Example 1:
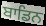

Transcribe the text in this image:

ਬਾਡਿਨ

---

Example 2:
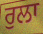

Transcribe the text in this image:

ਰੁਲਾ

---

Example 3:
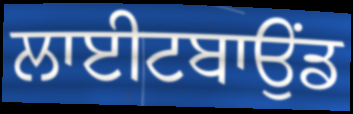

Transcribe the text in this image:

ਲਾਈਟਬਾਉਂਡ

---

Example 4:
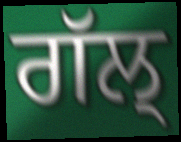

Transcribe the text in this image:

ਗੱਲ੍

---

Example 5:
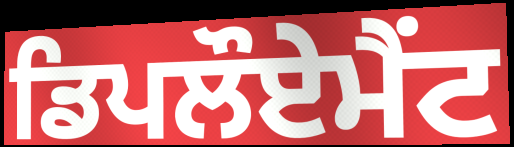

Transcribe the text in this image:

ਡਿਪਲੌਏਮੈਂਟ